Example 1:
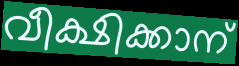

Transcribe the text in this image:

വീക്ഷിക്കാന്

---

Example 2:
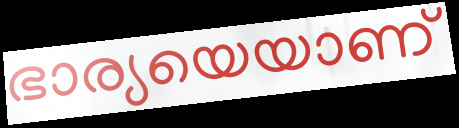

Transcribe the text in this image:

ഭാര്യയെയാണ്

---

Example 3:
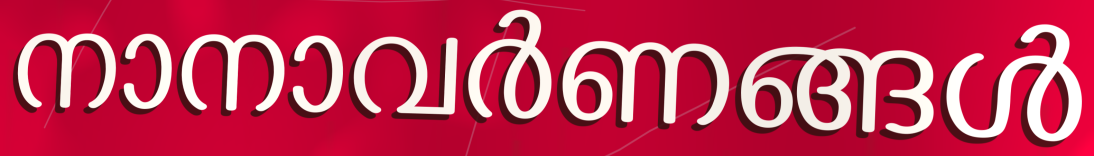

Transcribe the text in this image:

നാനാവർണങ്ങൾ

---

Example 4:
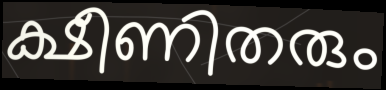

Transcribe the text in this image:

ക്ഷീണിതരും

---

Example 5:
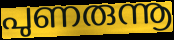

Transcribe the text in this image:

പുണരുന്നൂ